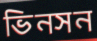
ভিনসন